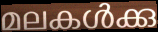
മലകൾക്കു